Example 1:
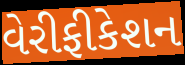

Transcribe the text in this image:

વેરીફીકેશન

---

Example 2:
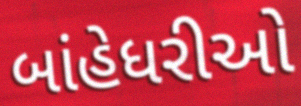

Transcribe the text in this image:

બાંહેધરીઓ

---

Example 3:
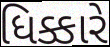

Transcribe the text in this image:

ધિક્કારે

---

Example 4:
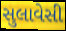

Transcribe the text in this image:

સુલાવેસી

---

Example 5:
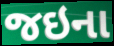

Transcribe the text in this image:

જઇના